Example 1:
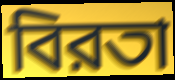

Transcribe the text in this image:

বিরতা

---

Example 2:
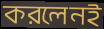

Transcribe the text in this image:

করলেনই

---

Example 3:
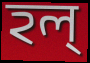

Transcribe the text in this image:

হল্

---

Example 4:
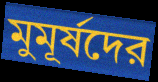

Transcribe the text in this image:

মুমূর্ষদের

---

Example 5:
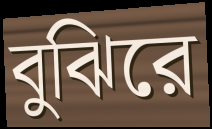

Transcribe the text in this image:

বুঝিরে